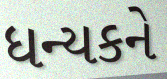
ધન્યકને